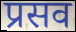
प्रसव